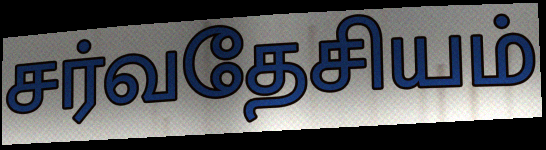
சர்வதேசியம்